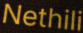
Nethili